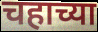
चहाच्या